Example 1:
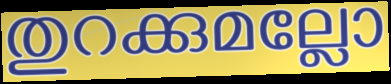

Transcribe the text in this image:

തുറക്കുമല്ലോ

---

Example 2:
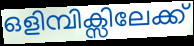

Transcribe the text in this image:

ഒളിമ്പിക്സിലേക്ക്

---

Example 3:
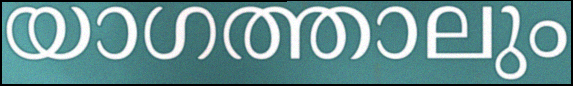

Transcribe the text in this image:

യാഗത്താലും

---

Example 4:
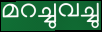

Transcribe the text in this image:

മറച്ചുവച്ചു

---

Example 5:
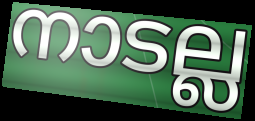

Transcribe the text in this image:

നാടല്ല